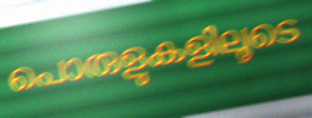
പൊരുളുകളിലൂടെ